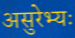
असुरेभ्यः